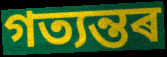
গত্যন্তৰ